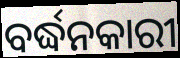
ବର୍ଦ୍ଧନକାରୀ